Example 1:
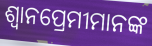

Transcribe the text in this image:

ଶ୍ଵାନପ୍ରେମୀମାନଙ୍କ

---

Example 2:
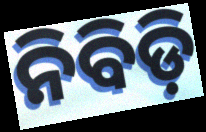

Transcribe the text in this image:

ନିବିଡ଼ି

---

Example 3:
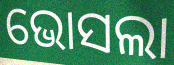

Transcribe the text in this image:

ଭୋସଲା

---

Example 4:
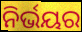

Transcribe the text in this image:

ନିର୍ଭୟର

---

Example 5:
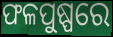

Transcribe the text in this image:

ଫଳପୁଷ୍ପରେ